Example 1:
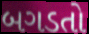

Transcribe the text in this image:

બગડતો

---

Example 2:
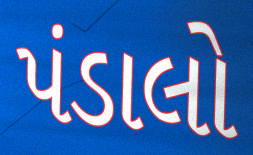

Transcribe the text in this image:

પંડાલો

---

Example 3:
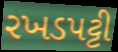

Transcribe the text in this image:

રખડપટ્ટી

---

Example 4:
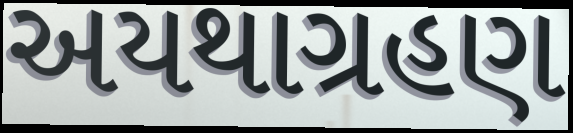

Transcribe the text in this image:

અયથાગ્રહણ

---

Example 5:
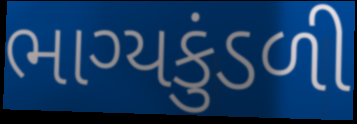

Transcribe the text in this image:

ભાગ્યકુંડળી